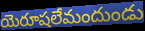
యెరూషలేమందుండు